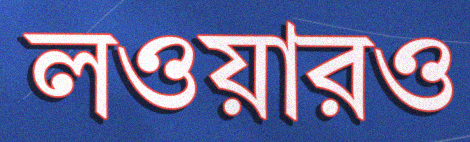
লওয়ারও